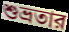
শুভ্রতার